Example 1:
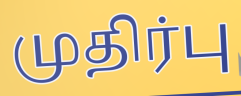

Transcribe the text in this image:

முதிர்பு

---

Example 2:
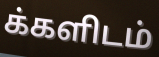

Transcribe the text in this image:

க்களிடம்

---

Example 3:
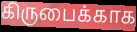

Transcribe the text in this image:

கிருபைக்காக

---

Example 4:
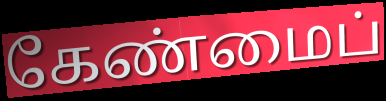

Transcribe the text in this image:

கேண்மைப்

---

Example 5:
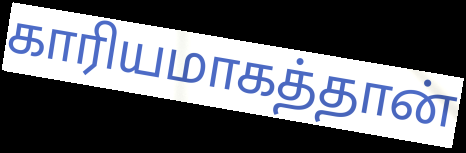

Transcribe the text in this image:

காரியமாகத்தான்